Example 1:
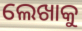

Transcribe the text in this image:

ଲେଖାକୁ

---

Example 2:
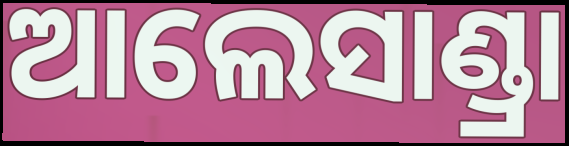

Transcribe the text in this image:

ଆଲେସାଣ୍ଡ୍ରା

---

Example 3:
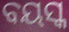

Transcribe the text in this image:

ବୟସ୍କ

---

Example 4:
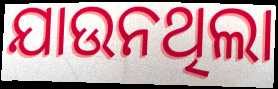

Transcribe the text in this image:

ଯାଉନଥିଲା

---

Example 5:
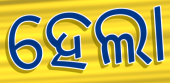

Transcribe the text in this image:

ହେଲା